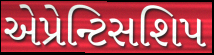
એપ્રેન્ટિસશિપ